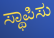
ಸ್ಥಾಪಿಸು